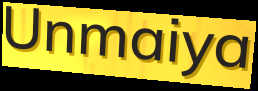
Unmaiya